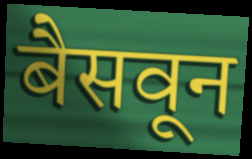
बैसवून